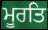
ਮੂਰਤਿ